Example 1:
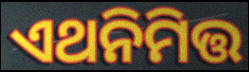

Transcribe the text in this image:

ଏଥନିମିତ୍ତ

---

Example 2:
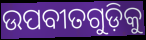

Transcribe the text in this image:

ଉପବୀତଗୁଡ଼ିକୁ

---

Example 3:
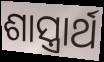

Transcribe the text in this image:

ଶାସ୍ତ୍ରାର୍ଥ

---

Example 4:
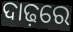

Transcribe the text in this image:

ଦାଢ଼ରେ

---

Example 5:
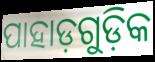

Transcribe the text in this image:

ପାହାଡ଼ଗୁଡ଼ିକ